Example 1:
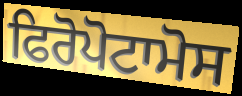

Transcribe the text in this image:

ਫਿਰੋਪੋਟਾਮੋਸ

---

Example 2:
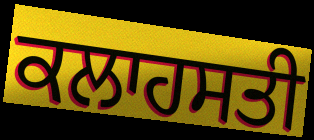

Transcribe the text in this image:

ਕਲਾਹਸਤੀ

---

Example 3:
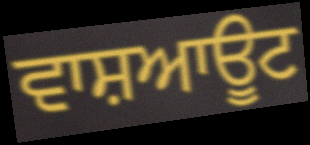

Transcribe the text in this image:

ਵਾਸ਼ਆਊਟ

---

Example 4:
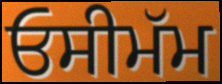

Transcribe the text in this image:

ਓਸੀਮੱਮ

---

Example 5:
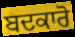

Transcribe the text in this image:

ਬਦਕਾਰੋ